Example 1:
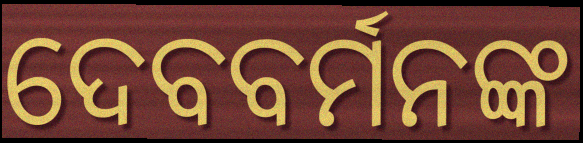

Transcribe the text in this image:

ଦେବବର୍ମନଙ୍କ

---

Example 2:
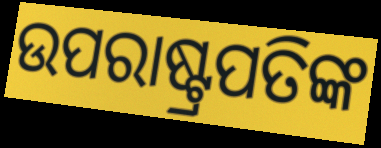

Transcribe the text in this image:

ଉପରାଷ୍ଟ୍ରପତିଙ୍କ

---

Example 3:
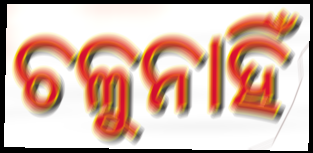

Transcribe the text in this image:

ଚଳୁନାହିଁ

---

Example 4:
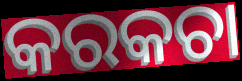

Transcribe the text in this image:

କରକଚା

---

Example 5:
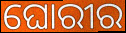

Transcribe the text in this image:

ଘୋରୀର